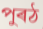
পুৰঠ